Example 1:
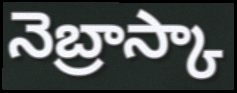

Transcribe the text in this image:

నెబ్రాస్కా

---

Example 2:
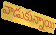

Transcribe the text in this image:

వాడుకున్నాయి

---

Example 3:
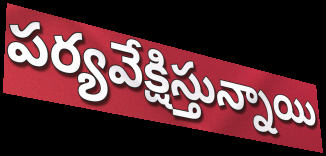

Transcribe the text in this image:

పర్యవేక్షిస్తున్నాయి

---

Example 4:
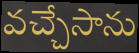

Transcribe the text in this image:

వచ్చేసాను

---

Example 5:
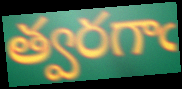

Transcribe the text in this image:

త్వరగాఁ